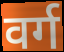
वर्ग